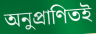
অনুপ্রাণিতই